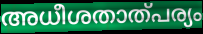
അധീശതാത്പര്യം